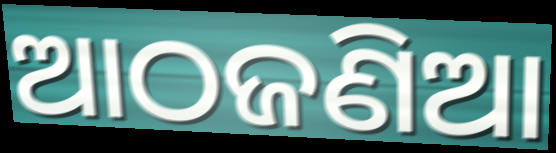
ଆଠଜଣିଆ